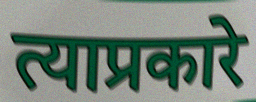
त्याप्रकारे